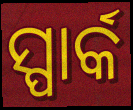
ସ୍ପାର୍କ